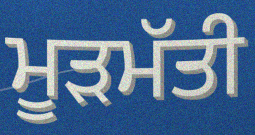
ਮੂੜਮੱਤੀ